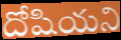
దోషియని